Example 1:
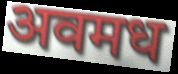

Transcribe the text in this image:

अवमध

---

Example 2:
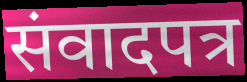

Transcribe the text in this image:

संवादपत्र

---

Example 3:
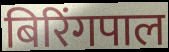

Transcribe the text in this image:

बिरिंगपाल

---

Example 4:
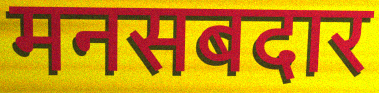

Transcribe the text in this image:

मनसबदार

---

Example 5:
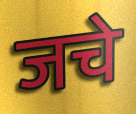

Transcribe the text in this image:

जचे